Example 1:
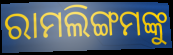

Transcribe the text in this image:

ରାମଲିଙ୍ଗମଙ୍କୁ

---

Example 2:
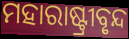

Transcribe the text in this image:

ମହାରାଷ୍ଟ୍ରୀବୃନ୍ଦ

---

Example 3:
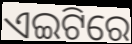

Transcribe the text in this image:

ଏଇଟିରେ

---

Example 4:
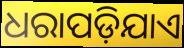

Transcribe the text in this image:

ଧରାପଡ଼ିଯାଏ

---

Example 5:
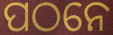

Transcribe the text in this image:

ପଠନେ